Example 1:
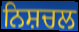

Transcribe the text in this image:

ਨਿਸ਼ਚਲ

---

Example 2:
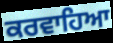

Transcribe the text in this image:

ਕਰਵਾਹਿਆ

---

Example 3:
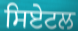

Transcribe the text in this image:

ਸਿਏਟਲ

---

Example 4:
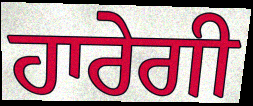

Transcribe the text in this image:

ਹਾਰੇਗੀ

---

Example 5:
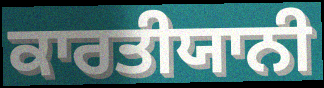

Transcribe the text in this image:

ਕਾਰਤੀਯਾਨੀ